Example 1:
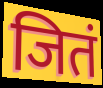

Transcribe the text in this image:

जितं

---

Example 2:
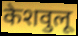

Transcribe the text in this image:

केशवुलू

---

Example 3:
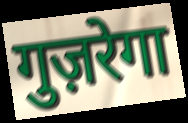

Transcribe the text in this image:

गुज़रेगा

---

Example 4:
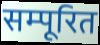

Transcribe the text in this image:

सम्पूरित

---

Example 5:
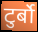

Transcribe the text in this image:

टुर्बो